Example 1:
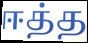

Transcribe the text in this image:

ஈத்த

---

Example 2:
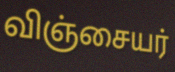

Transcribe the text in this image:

விஞ்சையர்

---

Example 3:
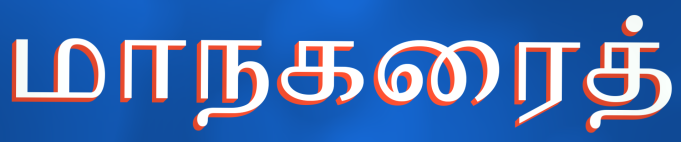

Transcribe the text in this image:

மாநகரைத்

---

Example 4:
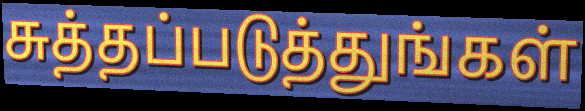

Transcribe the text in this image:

சுத்தப்படுத்துங்கள்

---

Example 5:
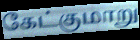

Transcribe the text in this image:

கேட்குமாறு